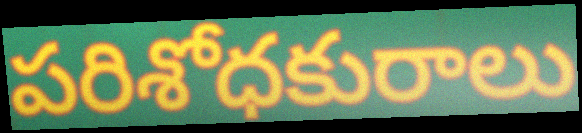
పరిశోధకురాలు